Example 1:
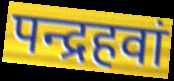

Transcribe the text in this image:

पन्द्रहवां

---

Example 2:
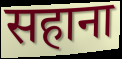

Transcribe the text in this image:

सहाना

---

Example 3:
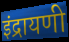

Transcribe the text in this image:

इंद्रायणी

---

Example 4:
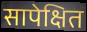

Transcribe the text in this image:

सापेक्षित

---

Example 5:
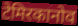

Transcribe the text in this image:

टेमिरकानोव